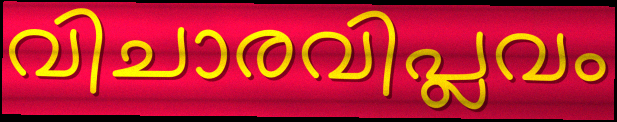
വിചാരവിപ്ലവം